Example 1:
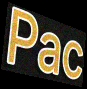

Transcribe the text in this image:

Pac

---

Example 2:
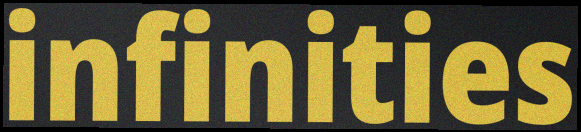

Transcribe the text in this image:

infinities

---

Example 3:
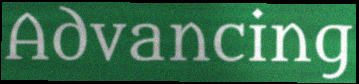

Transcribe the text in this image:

Advancing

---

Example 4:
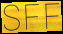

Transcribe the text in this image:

SFF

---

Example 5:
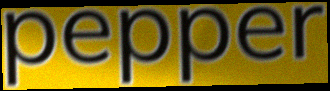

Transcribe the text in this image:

pepper